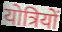
योत्रियों